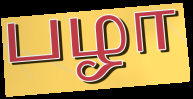
பழா